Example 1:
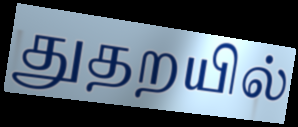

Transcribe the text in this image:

துதறயில்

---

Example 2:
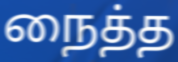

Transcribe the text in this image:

நைத்த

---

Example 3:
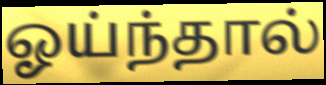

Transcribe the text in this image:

ஓய்ந்தால்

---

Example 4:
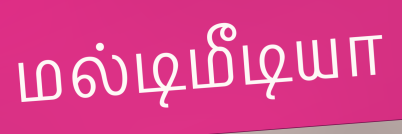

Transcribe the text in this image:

மல்டிமீடியா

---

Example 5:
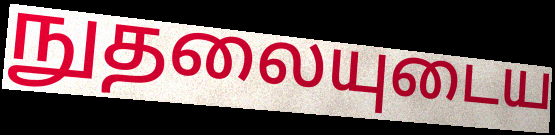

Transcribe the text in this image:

நுதலையுடைய